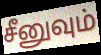
சீனுவும்